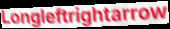
Longleftrightarrow